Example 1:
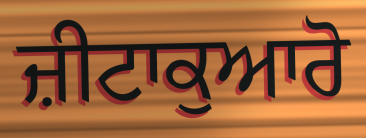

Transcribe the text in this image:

ਜ਼ੀਟਾਕੁਆਰੋ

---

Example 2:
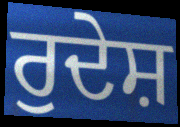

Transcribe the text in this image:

ਰੁਦੇਸ਼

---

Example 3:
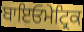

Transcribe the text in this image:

ਬਾਇਓਮੇਟ੍ਰਿਕ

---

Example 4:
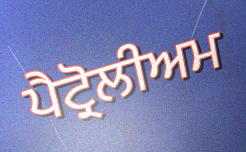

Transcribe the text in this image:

ਪੈਟ੍ਰੋਲੀਅਮ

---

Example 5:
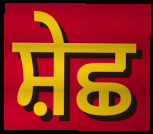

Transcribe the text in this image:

ਸ਼ੇਛ